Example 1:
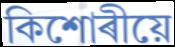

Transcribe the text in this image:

কিশোৰীয়ে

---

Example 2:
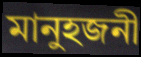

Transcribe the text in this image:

মানুহজনী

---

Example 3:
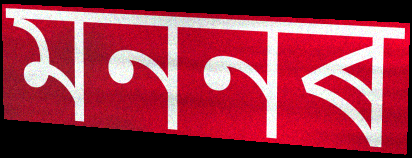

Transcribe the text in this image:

মননৰ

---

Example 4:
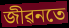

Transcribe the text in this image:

জীৱনতে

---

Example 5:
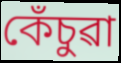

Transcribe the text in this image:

কেঁচুৱা